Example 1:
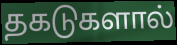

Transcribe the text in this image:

தகடுகளால்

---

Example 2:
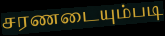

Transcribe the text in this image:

சரணடையும்படி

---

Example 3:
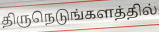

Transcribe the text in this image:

திருநெடுங்களத்தில்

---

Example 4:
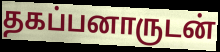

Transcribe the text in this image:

தகப்பனாருடன்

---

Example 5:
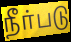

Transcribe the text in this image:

நீர்படு